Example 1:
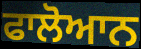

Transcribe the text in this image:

ਫਾਲੋਆਨ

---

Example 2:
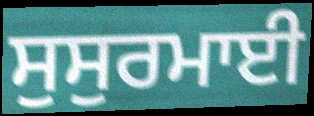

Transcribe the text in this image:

ਸੁਸੁਰਮਾਈ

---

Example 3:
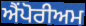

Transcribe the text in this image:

ਐਂਪੋਰੀਅਮ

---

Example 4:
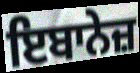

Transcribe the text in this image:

ਇਬਾਨੇਜ਼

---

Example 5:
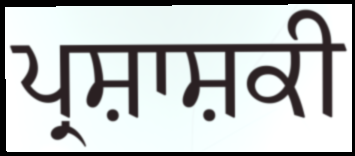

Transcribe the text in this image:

ਪ੍ਰਸ਼ਾਸ਼ਕੀ